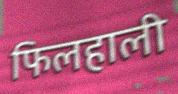
फिलहाली